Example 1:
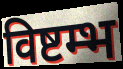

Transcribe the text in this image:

विष्टम्भ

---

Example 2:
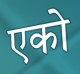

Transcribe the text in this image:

एको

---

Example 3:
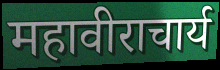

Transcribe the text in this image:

महावीराचार्य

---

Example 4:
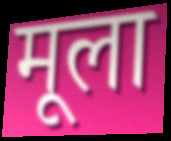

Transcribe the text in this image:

मूला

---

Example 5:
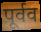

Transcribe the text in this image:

पूर्वव